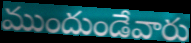
ముందుండేవారు